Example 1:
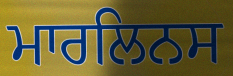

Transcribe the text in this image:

ਮਾਰਲਿਨਸ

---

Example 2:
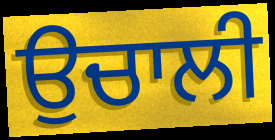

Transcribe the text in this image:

ਉਚਾਲੀ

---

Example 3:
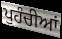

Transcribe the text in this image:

ਪੁਹੰਚੀਆਂ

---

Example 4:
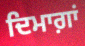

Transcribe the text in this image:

ਦਿਮਾਗ਼ਾਂ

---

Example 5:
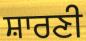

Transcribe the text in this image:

ਸ਼ਾਰਣੀ